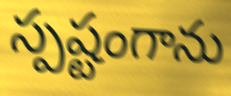
స్పష్టంగాను